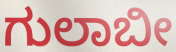
ಗುಲಾಬೀ